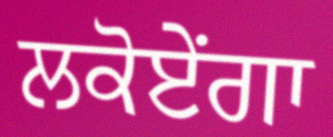
ਲਕੋਏਂਗਾ